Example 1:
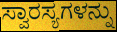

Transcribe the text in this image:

ಸ್ವಾರಸ್ಯಗಳನ್ನು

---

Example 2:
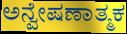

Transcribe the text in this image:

ಅನ್ವೇಷಣಾತ್ಮಕ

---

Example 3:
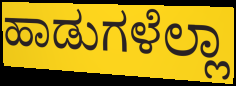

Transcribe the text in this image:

ಹಾಡುಗಳೆಲ್ಲಾ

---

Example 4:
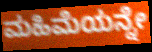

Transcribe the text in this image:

ಮಹಿಮೆಯನ್ನೇ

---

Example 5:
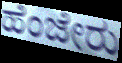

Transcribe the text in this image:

ಹೆಂಜೇರು